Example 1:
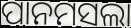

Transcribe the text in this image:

ପାନମସଲା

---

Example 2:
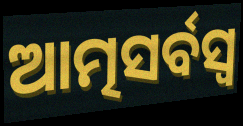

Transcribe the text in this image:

ଆତ୍ମସର୍ବସ୍ଵ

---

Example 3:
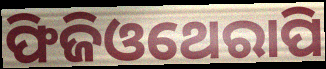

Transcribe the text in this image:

ଫିଜିଓଥେରାପି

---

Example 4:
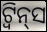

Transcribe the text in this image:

ଟ୍ବିନ୍‌ସ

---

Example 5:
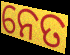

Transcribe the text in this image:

ନେତ